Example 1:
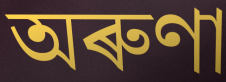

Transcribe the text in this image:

অৰুণা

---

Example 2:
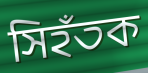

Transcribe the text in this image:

সিহঁতক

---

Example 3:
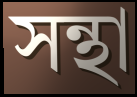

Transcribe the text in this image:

সন্থা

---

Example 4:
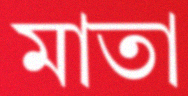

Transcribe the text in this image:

মাতা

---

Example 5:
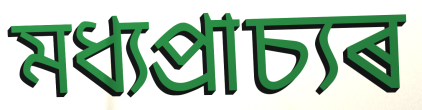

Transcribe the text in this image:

মধ্যপ্ৰাচ্যৰ